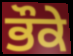
ਭੌਕੇ